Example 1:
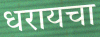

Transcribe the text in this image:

धरायचा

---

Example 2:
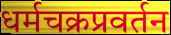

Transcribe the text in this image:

धर्मचक्रप्रवर्तन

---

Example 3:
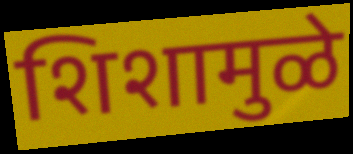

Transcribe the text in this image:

शिशामुळे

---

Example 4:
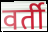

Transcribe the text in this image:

वर्ती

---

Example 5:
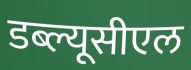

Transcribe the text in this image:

डब्ल्यूसीएल